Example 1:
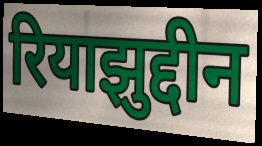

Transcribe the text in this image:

रियाझुद्दीन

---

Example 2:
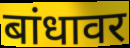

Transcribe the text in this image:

बांधावर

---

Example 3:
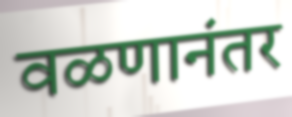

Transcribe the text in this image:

वळणानंतर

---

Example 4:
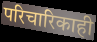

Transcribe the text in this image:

परिचारिकाही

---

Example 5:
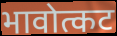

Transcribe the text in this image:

भावोत्कट